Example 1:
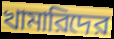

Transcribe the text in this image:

খামারিদের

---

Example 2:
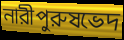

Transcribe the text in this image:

নারীপুরুষভেদ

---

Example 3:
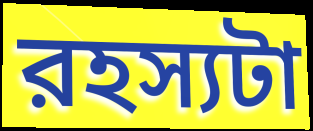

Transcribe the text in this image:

রহস্যটা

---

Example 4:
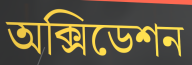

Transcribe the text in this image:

অক্সিডেশন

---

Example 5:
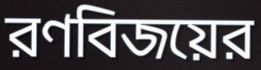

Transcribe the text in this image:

রণবিজয়ের